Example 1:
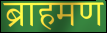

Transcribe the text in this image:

ब्राहमण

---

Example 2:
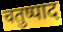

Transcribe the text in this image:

चतुष्पाद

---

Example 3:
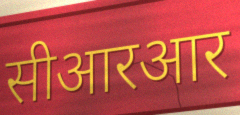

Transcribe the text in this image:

सीआरआर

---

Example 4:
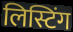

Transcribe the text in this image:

लिस्टिंग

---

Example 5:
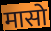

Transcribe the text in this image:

मासो